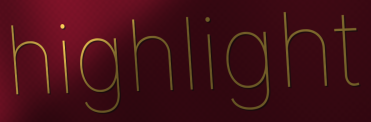
highlight